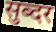
सुब्दर